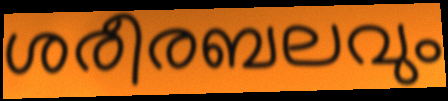
ശരീരബലവും